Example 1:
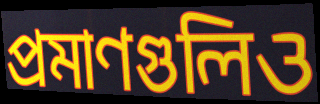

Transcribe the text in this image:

প্রমাণগুলিও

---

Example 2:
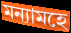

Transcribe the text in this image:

মন্যামহে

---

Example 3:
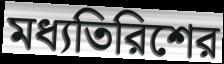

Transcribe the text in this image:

মধ্যতিরিশের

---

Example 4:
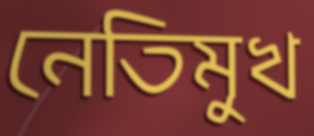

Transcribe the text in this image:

নেতিমুখ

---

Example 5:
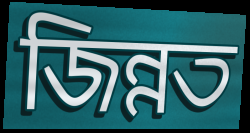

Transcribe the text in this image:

জিন্নত